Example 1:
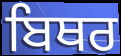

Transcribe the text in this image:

ਬਿਥਰ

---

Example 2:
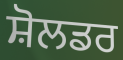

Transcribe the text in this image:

ਸ਼ੋਲਡਰ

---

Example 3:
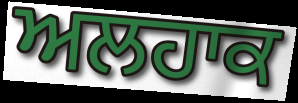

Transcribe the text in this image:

ਅਲਹਾਕ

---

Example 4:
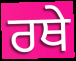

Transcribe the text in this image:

ਰਥੇ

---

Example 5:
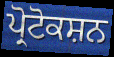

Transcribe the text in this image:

ਪ੍ਰੋਟੋਕਸ਼ਨ